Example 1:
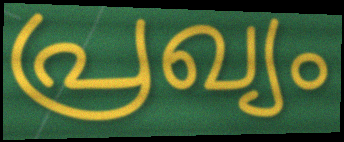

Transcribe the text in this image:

പ്രഖ്യം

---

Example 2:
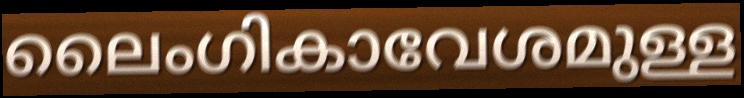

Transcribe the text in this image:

ലൈംഗികാവേശമുള്ള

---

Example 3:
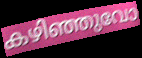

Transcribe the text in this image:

കഴിഞ്ഞുവോ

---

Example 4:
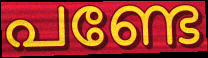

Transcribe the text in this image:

പണ്ടേ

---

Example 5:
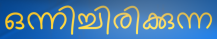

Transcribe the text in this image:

ഒന്നിച്ചിരിക്കുന്ന